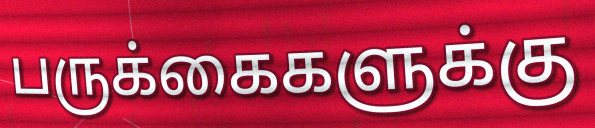
பருக்கைகளுக்கு